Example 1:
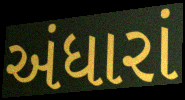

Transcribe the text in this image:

અંધારાં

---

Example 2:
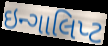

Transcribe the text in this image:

ઇન્ગાલિપ્ટ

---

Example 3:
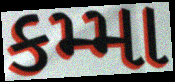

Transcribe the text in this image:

કમ્મા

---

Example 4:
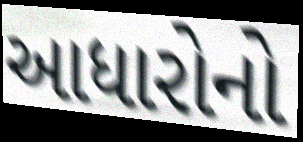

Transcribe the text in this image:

આધારોનો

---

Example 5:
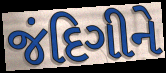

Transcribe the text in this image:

જંદિગીને